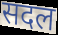
सदल